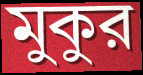
মুকুর